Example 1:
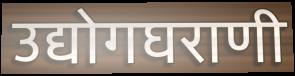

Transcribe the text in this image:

उद्योगघराणी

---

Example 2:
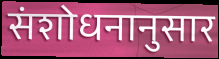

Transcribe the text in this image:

संशोधनानुसार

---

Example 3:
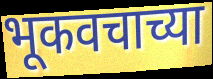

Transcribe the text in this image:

भूकवचाच्या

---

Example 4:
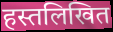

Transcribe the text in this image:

हस्तलिखित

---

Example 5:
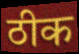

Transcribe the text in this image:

ठीक